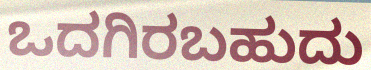
ಒದಗಿರಬಹುದು